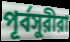
পূর্বসুরীরা